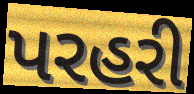
પરહરી